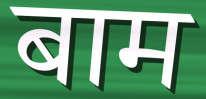
बाम